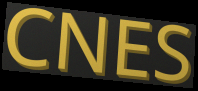
CNES